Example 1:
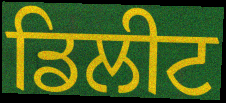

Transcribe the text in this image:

ਡਿਲੀਟ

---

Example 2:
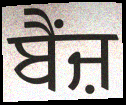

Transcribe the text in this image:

ਬੈਂਜ਼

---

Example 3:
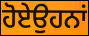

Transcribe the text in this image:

ਹੋਏਉਹਨਾਂ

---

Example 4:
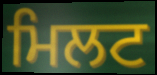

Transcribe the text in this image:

ਮਿਲਟ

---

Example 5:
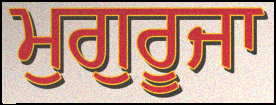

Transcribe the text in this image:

ਮੁਗੁਰੂਜਾ